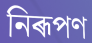
নিৰূপণ